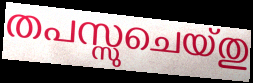
തപസ്സുചെയ്തു